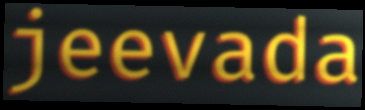
jeevada